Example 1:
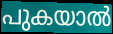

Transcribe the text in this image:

പുകയാൽ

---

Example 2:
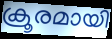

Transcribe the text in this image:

ക്രൂരമായി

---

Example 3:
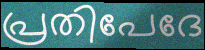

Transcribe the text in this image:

പ്രതിപേദേ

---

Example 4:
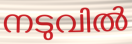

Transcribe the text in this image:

നടുവിൽ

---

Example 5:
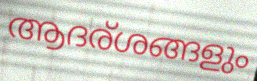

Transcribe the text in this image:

ആദര്ശങ്ങളും